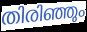
തിരിഞ്ഞും